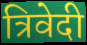
त्रिवेदी